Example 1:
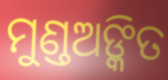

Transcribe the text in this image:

ମୁଣ୍ଡଅଙ୍କିତ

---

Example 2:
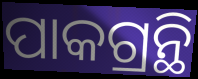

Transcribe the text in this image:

ପାକଗ୍ରନ୍ଥି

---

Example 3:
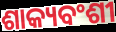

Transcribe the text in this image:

ଶାକ୍ୟବଂଶୀ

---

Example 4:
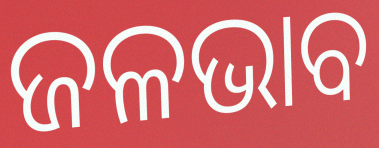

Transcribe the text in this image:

ଜଳଭାବ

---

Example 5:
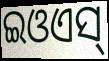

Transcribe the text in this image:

ଇଓଏସ୍